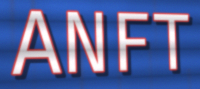
ANFT